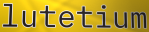
lutetium